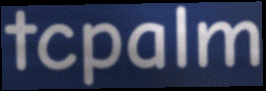
tcpalm